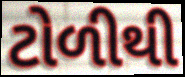
ટોળીથી